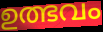
ഉത്ഭവം